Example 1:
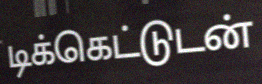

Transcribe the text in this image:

டிக்கெட்டுடன்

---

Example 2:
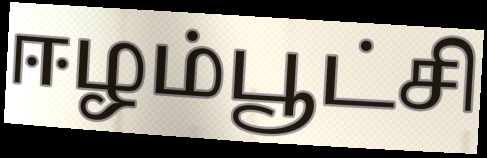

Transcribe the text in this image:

ஈழம்பூட்சி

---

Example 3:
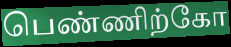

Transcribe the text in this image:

பெண்ணிற்கோ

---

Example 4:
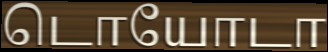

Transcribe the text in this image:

டொயோடா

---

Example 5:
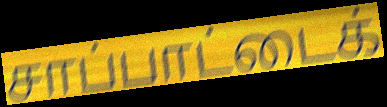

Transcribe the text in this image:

சாப்பாட்டைக்